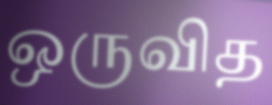
ஒருவித